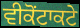
ਵੀਕੋਂਟਾਕਟੇ